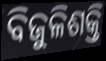
ବିଜୁଳିଶକ୍ତି